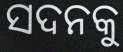
ସଦନକୁ